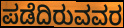
ಪಡೆದಿರುವವರ